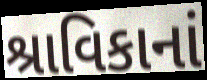
શ્રાવિકાનાં